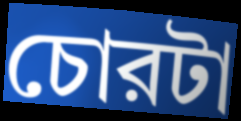
চোরটা